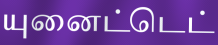
யுனைட்டெட்